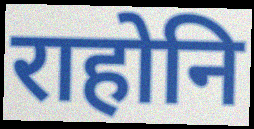
राहोनि